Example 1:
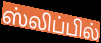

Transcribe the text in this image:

ஸ்லிப்பில்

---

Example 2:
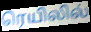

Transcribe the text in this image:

ரெயிலில்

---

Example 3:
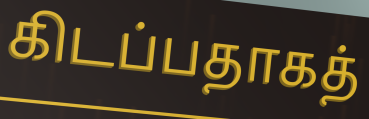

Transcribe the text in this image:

கிடப்பதாகத்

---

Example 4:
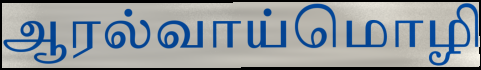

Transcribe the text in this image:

ஆரல்வாய்மொழி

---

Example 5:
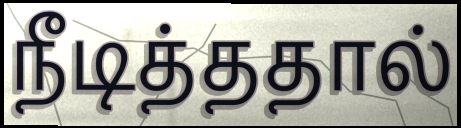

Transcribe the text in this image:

நீடித்ததால்